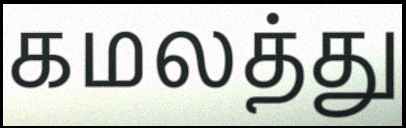
கமலத்து